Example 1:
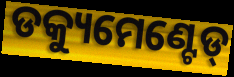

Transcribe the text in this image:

ଡକ୍ୟୁମେଣ୍ଟେଡ୍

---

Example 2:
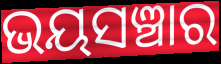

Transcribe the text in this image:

ଭୟସଞ୍ଚାର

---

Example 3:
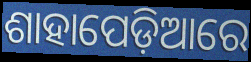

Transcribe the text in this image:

ଶାହାପେଡ଼ିଆରେ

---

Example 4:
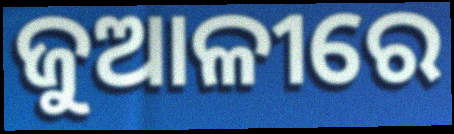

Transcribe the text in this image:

ଜୁଆଳୀରେ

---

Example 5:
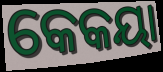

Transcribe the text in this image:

କେକୟା